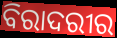
ବିରାଦରୀର